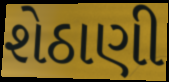
શેઠાણી